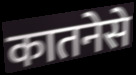
कातनेसे